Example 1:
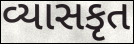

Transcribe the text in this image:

વ્યાસકૃત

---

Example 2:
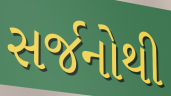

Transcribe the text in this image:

સર્જનોથી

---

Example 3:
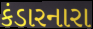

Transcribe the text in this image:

કંડારનારા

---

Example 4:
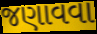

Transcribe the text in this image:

જણાવવા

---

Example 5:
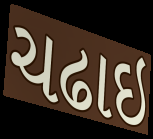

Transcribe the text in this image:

ચઢાઇ